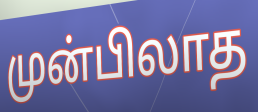
முன்பிலாத